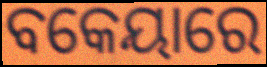
ବକେୟାରେ